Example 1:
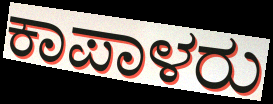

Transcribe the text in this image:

ಕಾಪಾಳರು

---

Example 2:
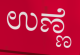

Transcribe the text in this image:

ಉಣ್ಣೆ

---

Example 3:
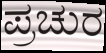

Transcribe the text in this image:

ಪ್ರಚುರ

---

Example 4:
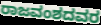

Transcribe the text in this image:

ರಾಜವಂಶದವರ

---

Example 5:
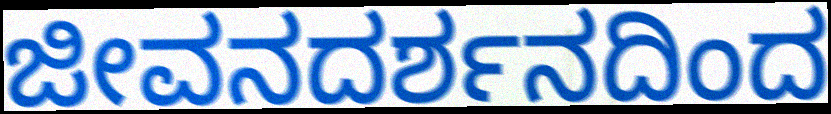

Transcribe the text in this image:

ಜೀವನದರ್ಶನದಿಂದ